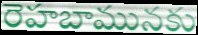
రెహబామునకు